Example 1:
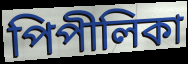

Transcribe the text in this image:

পিপীলিকা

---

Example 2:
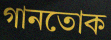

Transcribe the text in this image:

গানতোক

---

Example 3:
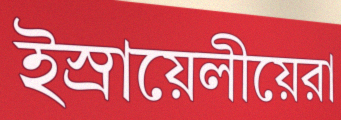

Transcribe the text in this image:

ইস্রায়েলীয়েরা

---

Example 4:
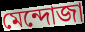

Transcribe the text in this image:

মেন্দোজা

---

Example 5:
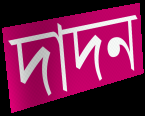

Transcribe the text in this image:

দাদন